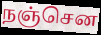
நஞ்சென